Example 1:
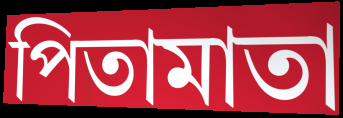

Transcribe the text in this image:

পিতামাতা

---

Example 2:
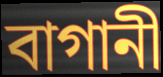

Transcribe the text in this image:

বাগানী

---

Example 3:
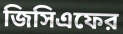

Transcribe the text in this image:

জিসিএফের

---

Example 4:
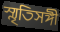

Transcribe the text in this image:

স্মৃতিসঙ্গী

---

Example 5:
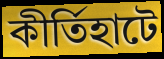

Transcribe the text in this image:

কীর্তিহাটে